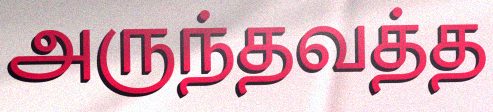
அருந்தவத்த